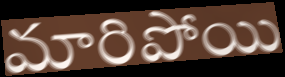
మారిపోయి